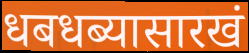
धबधब्यासारखं